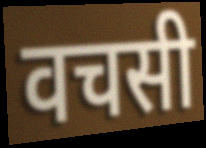
वचसी